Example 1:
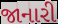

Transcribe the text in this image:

જાનારી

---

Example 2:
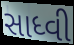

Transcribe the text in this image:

સાધ્વી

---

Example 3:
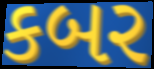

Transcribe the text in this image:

કબર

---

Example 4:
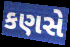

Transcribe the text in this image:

કણસે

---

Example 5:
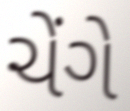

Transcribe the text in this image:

ચેંગે